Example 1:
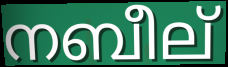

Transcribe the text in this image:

നബീല്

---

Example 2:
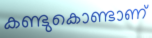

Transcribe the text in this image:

കണ്ടുകൊണ്ടാണ്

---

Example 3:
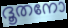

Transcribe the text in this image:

ദൂതനോ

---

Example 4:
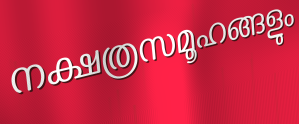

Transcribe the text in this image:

നക്ഷത്രസമൂഹങ്ങളും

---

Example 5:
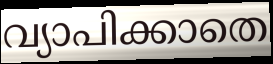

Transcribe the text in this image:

വ്യാപിക്കാതെ